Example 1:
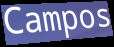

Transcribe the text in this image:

Campos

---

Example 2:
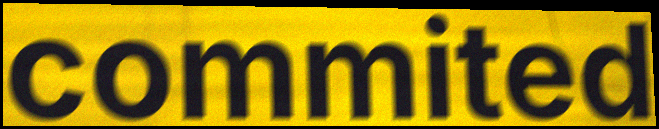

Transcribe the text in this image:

commited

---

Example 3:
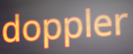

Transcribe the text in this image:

doppler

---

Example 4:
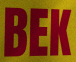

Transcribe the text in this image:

BEK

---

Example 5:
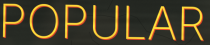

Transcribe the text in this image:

POPULAR